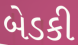
બેડકી